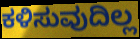
ಕಳಿಸುವುದಿಲ್ಲ